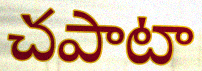
చపాటా